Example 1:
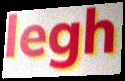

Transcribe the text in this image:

legh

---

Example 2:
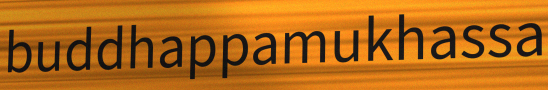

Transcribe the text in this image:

buddhappamukhassa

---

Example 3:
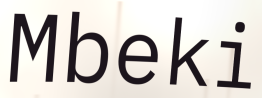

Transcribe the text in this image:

Mbeki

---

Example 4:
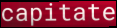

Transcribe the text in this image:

capitate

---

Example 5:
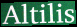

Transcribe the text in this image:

Altilis